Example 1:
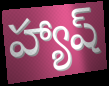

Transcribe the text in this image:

హ్యాష్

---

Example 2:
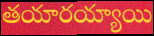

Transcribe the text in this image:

తయారయ్యాయి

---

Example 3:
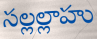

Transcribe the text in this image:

సల్లల్లాహు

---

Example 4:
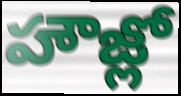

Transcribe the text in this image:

హౌజ్లో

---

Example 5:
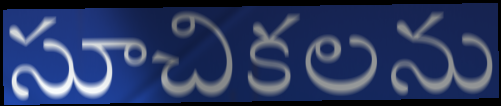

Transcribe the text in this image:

సూచికలను